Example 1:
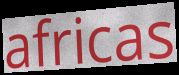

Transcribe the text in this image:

africas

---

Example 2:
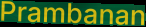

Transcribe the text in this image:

Prambanan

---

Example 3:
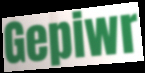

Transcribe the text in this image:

Gepiwr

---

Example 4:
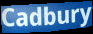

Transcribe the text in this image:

Cadbury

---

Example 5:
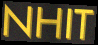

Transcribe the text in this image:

NHIT